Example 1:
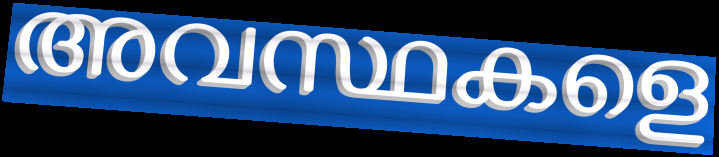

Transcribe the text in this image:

അവസ്ഥകളെ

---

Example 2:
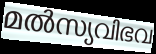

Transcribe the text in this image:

മൽസ്യവിഭവ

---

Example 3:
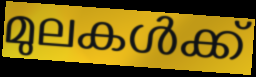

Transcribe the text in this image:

മുലകൾക്ക്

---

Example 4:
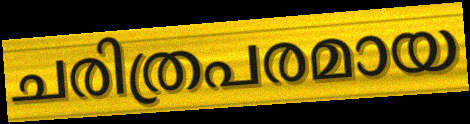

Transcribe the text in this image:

ചരിത്രപരമായ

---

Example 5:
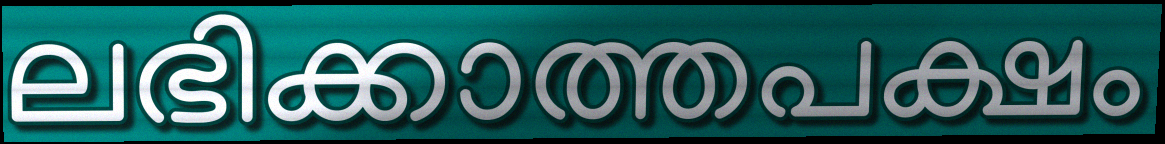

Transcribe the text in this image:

ലഭിക്കാത്തപക്ഷം